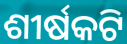
ଶୀର୍ଷକଟି